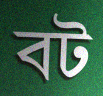
বট